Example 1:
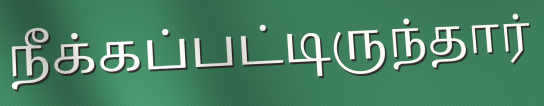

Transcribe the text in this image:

நீக்கப்பட்டிருந்தார்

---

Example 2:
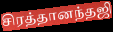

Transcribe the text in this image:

சிரத்தானந்தஜி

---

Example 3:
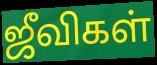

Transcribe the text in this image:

ஜீவிகள்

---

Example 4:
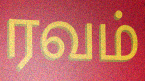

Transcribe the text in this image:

ரவம்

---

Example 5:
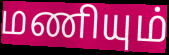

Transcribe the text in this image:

மணியும்